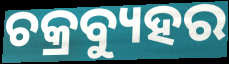
ଚକ୍ରବ୍ୟୁହର